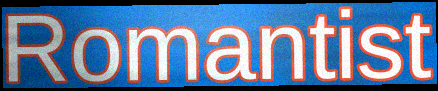
Romantist